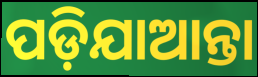
ପଡ଼ିଯାଆନ୍ତା